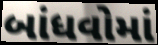
બાંધવોમાં